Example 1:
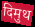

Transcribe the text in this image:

दिमुथ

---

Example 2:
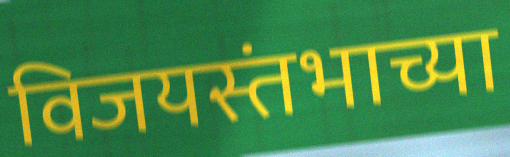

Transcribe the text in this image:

विजयस्तंभाच्या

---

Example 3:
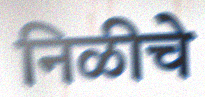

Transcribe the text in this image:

निळीचे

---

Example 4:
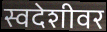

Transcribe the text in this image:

स्वदेशीवर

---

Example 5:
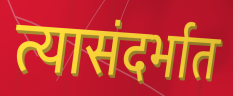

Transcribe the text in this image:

त्यासंदर्भात